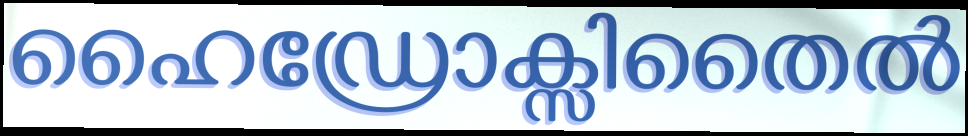
ഹൈഡ്രോക്സിതൈൽ